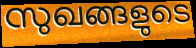
സുഖങ്ങളുടെ